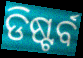
ଡିଷ୍ଟର୍ବ